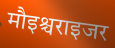
मौइश्चराइजर